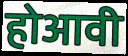
होआवी